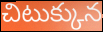
చిటుక్కున